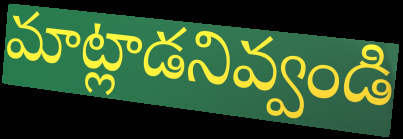
మాట్లాడనివ్వండి